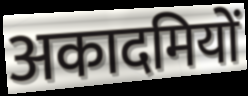
अकादमियों